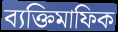
ব্যক্তিমাফিক